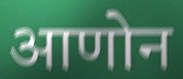
आणोन